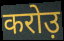
करोउ़